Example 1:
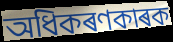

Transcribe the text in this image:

অধিকৰণকাৰক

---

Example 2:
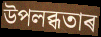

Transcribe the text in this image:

উপলব্ধতাৰ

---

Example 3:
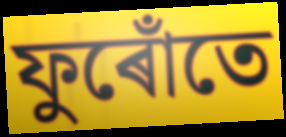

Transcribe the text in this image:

ফুৰোঁতে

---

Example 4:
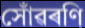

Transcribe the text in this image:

সোঁৱৰণি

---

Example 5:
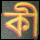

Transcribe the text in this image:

কী